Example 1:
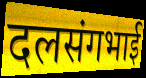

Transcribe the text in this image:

दलसंगभाई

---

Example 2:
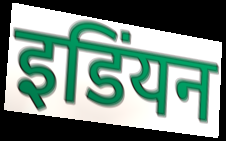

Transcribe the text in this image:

इडिंयन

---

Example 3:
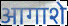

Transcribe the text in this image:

आगाशे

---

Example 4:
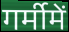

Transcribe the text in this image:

गर्मीमें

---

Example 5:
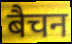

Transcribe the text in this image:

बैचन